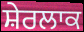
ਸ਼ੇਰਲਾਕ